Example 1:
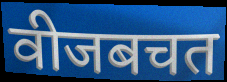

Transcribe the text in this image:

वीजबचत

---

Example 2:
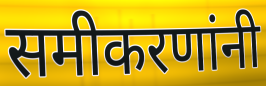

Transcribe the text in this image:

समीकरणांनी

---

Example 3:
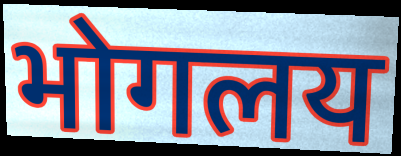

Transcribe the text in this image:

भोगलय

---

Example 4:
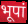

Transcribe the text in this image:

भूपां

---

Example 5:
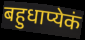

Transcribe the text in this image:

बहुधाप्येकं